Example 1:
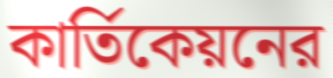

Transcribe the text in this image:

কার্তিকেয়নের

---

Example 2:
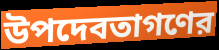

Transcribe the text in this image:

উপদেবতাগণের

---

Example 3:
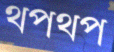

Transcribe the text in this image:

থপথপ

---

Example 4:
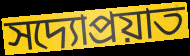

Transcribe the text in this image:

সদ্যোপ্রয়াত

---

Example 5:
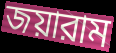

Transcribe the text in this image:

জয়ারাম